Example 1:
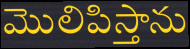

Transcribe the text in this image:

మొలిపిస్తాను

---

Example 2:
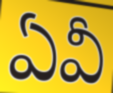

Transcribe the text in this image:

ఏవీ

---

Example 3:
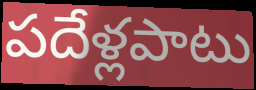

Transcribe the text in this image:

పదేళ్లపాటు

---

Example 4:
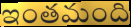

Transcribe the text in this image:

ఇంతమంది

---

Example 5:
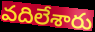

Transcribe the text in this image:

వదిలేశారు